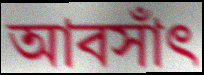
আবসাঁৎ